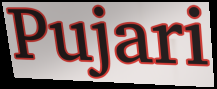
Pujari